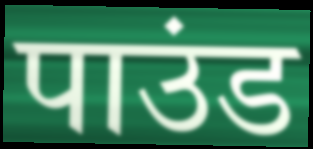
पाउंड